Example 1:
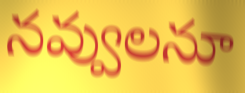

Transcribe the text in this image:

నవ్వులనూ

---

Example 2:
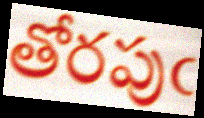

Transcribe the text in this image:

తోరపుఁ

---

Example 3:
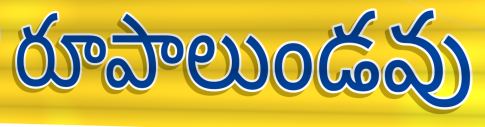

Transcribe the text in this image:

రూపాలుండవు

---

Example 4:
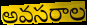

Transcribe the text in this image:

అవసరాల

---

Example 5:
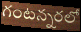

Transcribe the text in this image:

గంటన్నరలో